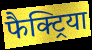
फैक्ट्रिया